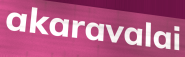
akaravalai